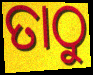
ତାଠୁ